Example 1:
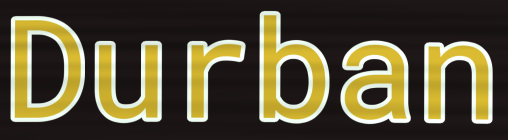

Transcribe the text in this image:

Durban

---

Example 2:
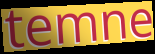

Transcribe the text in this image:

temne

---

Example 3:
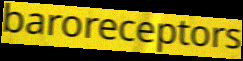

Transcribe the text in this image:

baroreceptors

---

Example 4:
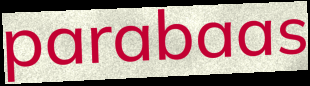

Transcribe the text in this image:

parabaas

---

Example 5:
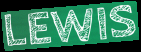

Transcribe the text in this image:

LEWIS